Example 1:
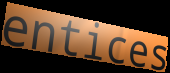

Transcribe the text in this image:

entices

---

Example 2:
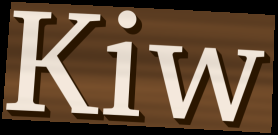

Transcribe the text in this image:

Kiw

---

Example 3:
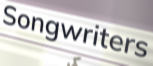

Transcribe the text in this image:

Songwriters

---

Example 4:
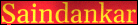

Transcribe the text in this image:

Saindankar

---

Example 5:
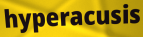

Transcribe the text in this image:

hyperacusis